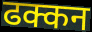
ढक्कन